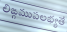
లిఙ్గముపలభ్యతే